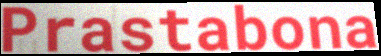
Prastabona